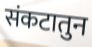
संकटातुन